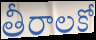
తీరాలకో